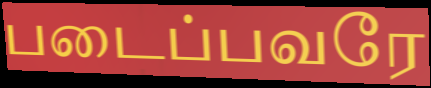
படைப்பவரே